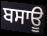
ਬਸਾਊ